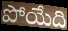
పోయేది